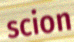
scion